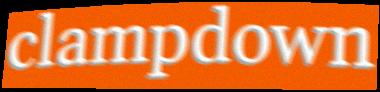
clampdown